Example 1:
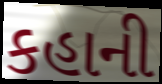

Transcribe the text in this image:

કહાની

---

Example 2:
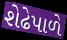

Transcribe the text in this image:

શેઢેપાળે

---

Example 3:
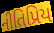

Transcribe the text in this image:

નીતિપ્રિય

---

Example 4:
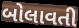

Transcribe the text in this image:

બોલાવતી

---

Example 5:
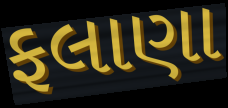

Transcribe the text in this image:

ફલાણા